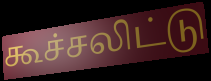
கூச்சலிட்டு